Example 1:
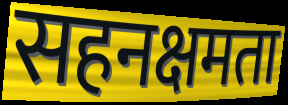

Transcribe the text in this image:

सहनक्षमता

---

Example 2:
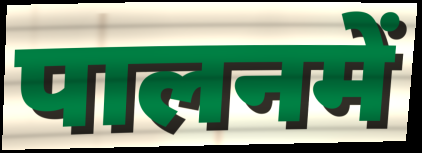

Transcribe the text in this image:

पालनमें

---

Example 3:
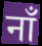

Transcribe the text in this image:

नाँ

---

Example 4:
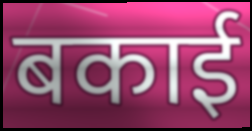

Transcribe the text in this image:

बकाई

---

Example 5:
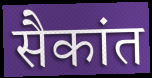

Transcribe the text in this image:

सैकांत